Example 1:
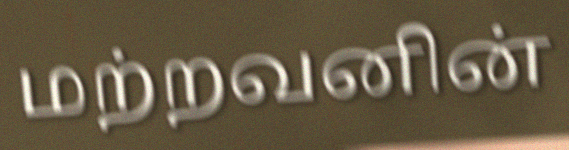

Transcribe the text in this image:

மற்றவனின்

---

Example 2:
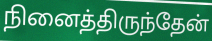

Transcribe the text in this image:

நினைத்திருந்தேன்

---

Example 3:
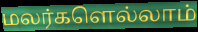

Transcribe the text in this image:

மலர்களெல்லாம்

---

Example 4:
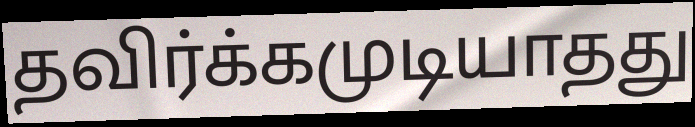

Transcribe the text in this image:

தவிர்க்கமுடியாதது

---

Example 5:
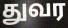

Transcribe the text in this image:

துவர